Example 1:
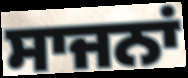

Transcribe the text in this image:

ਸਾਜਨਾਂ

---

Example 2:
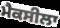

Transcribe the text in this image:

ਮੈਕਸੀਲਾ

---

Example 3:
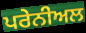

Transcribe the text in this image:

ਪਰੇਨੀਅਲ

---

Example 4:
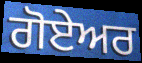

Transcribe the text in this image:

ਗੋਏਅਰ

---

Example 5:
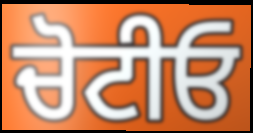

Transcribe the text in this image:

ਚੋਟੀਓ